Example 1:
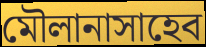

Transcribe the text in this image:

মৌলানাসাহেব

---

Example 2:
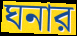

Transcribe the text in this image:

ঘনার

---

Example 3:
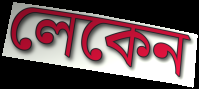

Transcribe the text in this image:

লেকেন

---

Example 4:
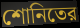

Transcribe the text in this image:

শোনিতের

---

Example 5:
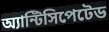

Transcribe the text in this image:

অ্যান্টিসিপেটেড